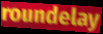
roundelay